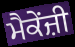
ਮੈਕੇਂਜ਼ੀ